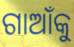
ଗାଆଁକୁ